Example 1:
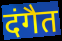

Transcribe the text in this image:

दंगैत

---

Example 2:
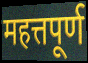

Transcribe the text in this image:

महत्तपूर्ण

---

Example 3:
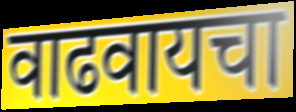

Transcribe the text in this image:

वाढवायचा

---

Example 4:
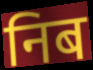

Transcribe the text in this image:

निब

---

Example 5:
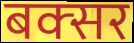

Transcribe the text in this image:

बक्‍सर